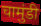
चामुंडी